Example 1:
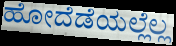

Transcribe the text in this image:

ಹೋದೆಡೆಯಲ್ಲೆಲ್ಲ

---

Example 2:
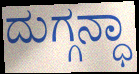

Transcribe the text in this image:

ದುಗ್ಗನ್ಧಾ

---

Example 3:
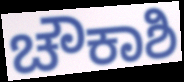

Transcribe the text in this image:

ಚೌಕಾಶಿ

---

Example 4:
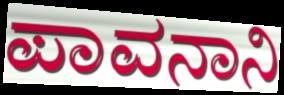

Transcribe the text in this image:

ಪಾವನಾನಿ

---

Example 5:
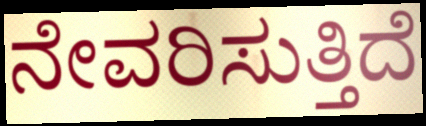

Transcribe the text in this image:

ನೇವರಿಸುತ್ತಿದೆ